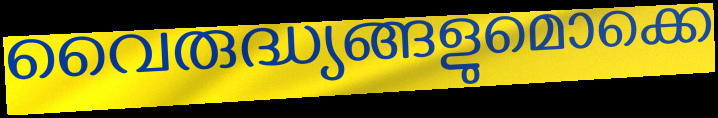
വൈരുദ്ധ്യങ്ങളുമൊക്കെ